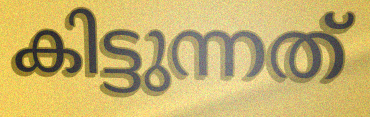
കിട്ടുന്നത്